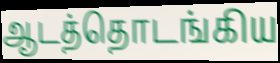
ஆடத்தொடங்கிய